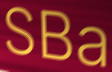
SBa